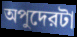
অপুদেরটা